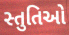
સ્તુતિઓ